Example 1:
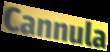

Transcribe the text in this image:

Cannula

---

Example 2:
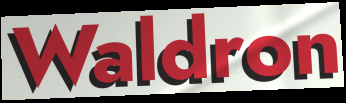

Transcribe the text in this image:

Waldron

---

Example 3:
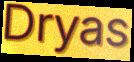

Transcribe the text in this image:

Dryas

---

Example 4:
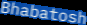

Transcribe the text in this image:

Bhabatosh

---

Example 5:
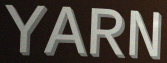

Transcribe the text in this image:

YARN